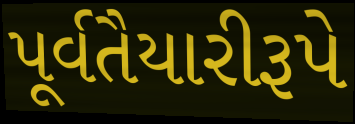
પૂર્વતૈયારીરૂપે